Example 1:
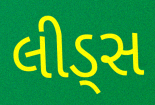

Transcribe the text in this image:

લીડ્સ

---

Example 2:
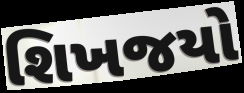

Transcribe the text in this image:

શિખજયો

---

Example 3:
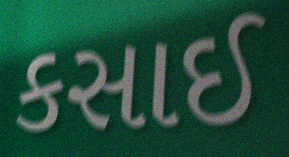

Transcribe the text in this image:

કસાઈ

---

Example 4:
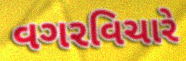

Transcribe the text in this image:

વગરવિચારે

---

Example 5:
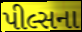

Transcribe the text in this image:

પીલ્સના